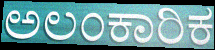
ಅಲಂಕಾರಿಕ